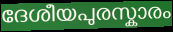
ദേശീയപുരസ്കാരം